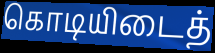
கொடியிடைத்